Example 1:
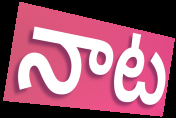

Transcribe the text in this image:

నాట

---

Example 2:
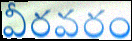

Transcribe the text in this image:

వీరవరం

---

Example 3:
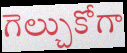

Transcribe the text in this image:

గెల్చుకోగా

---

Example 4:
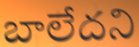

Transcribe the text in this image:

బాలేదని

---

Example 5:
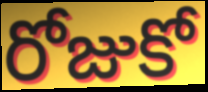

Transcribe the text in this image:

రోజుకో